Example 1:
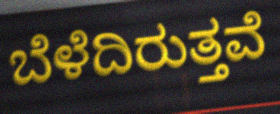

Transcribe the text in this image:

ಬೆಳೆದಿರುತ್ತವೆ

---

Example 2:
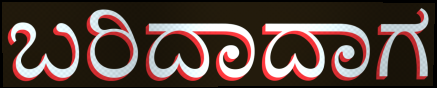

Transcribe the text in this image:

ಬರಿದಾದಾಗ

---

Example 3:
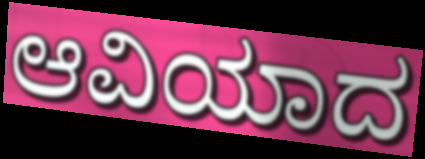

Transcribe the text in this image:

ಆವಿಯಾದ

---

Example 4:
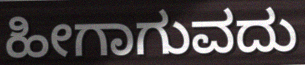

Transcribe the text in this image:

ಹೀಗಾಗುವದು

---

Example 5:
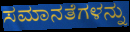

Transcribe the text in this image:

ಸಮಾನತೆಗಳನ್ನು